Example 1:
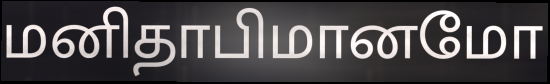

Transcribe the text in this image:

மனிதாபிமானமோ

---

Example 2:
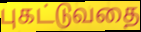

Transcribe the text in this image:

புகட்டுவதை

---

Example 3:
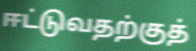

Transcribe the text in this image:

ஈட்டுவதற்குத்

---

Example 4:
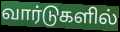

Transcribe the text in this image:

வார்டுகளில்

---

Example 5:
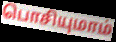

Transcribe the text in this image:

பொசியுமாம்